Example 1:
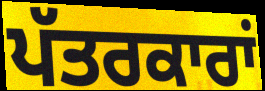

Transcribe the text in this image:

ਪੱਤਰਕਾਰਾਂ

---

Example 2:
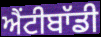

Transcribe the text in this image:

ਐਂਟੀਬਾੱਡੀ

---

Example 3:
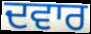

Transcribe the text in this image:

ਦਵਾਰ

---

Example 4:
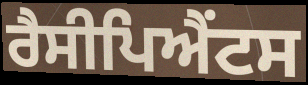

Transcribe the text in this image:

ਰੈਸੀਪਿਐਂਟਸ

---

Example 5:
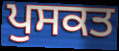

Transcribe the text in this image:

ਪੁਸਕਤ